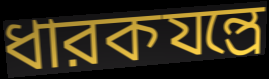
ধারকযন্ত্রে